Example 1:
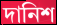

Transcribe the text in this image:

দানিশ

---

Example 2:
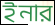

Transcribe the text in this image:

ইনার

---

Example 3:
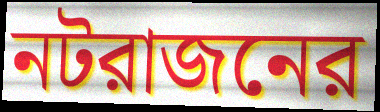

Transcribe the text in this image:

নটরাজনের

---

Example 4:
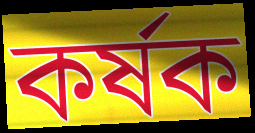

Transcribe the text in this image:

কর্ষক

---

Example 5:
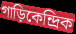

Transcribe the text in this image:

গাড়িকেন্দ্রিক